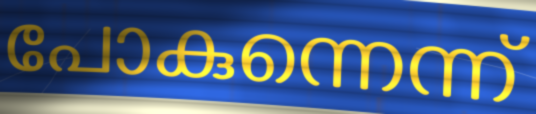
പോകുന്നെന്ന്